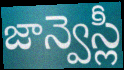
జాన్వెస్లీ